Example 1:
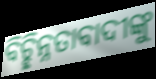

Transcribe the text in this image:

ବିଚ୍ଛିନ୍ନତାବାଦୀଙ୍କୁ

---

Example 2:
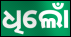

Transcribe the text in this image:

ଧିଲୋଁ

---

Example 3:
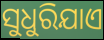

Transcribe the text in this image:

ସୁଧୁରିଯାଏ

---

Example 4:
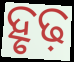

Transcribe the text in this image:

ହୃଢ଼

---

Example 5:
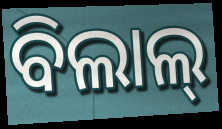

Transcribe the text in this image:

ବିଲାଲ୍